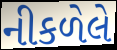
નીકળેલે